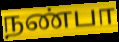
நண்பா